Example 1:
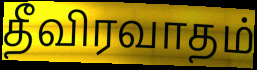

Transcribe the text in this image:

தீவிரவாதம்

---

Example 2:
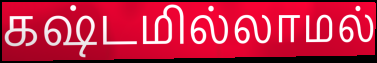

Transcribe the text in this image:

கஷ்டமில்லாமல்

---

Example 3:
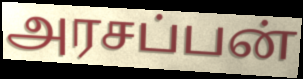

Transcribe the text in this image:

அரசப்பன்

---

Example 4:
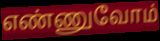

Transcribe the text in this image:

எண்ணுவோம்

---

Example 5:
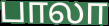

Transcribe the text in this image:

பாலா